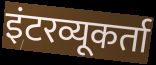
इंटरव्यूकर्ता